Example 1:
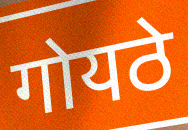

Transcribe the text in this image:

गोयठे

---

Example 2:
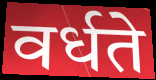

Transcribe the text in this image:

वर्धते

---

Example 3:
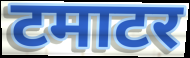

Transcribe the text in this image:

टमाटर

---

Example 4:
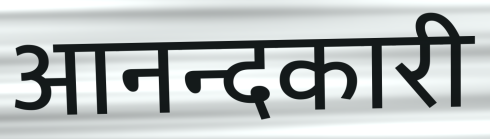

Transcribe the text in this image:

आनन्दकारी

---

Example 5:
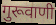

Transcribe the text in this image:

गुरूवाणी